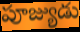
పూజ్యుడు